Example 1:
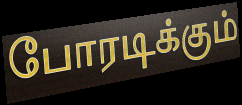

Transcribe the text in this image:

போரடிக்கும்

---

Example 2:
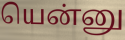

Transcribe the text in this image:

யென்னு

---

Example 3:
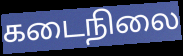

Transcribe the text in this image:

கடைநிலை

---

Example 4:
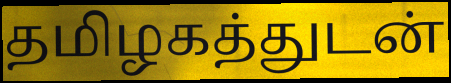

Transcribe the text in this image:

தமிழகத்துடன்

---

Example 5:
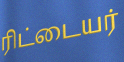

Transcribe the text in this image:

ரிட்டையர்